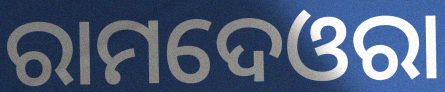
ରାମଦେଓରା